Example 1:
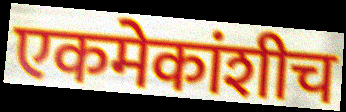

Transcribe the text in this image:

एकमेकांशीच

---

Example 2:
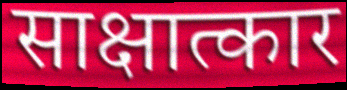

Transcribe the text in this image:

साक्षात्कार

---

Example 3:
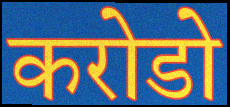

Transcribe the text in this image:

करोडो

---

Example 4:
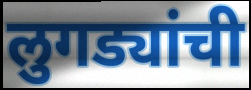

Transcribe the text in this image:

लुगड्यांची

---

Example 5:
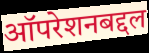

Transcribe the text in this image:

ऑपरेशनबद्दल